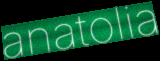
anatolia